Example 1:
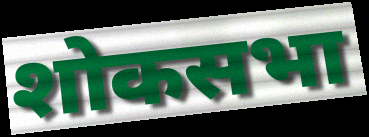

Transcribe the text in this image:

शोकसभा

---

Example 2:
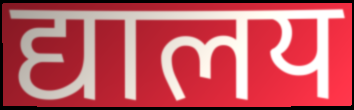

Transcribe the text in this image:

द्यालय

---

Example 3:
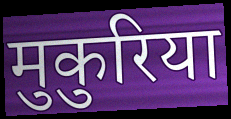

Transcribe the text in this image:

मुकुरिया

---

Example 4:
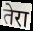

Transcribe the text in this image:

तेरा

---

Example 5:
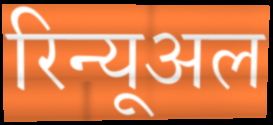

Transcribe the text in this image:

रिन्यूअल